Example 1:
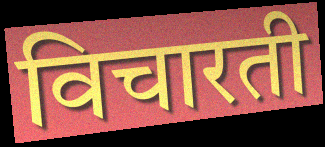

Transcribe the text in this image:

विचारती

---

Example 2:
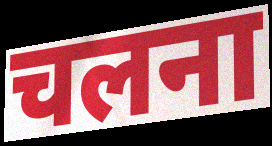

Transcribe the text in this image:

चलना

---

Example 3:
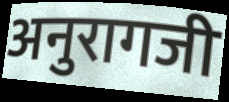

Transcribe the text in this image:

अनुरागजी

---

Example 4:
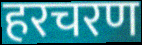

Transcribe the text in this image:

हरचरण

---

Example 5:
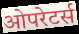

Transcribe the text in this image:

ओपरेटर्स